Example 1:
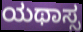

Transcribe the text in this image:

ಯಥಾಸ್ಸ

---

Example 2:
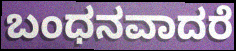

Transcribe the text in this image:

ಬಂಧನವಾದರೆ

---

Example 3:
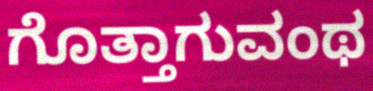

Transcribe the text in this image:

ಗೊತ್ತಾಗುವಂಥ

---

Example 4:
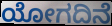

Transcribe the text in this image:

ಯೋಗದಿನೆ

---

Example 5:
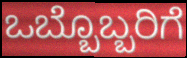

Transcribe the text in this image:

ಒಬ್ಬೊಬ್ಬರಿಗೆ